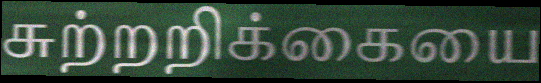
சுற்றறிக்கையை